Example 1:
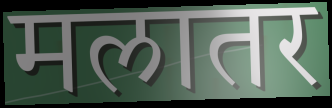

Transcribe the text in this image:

मलातर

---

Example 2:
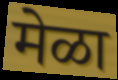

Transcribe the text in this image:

मेळा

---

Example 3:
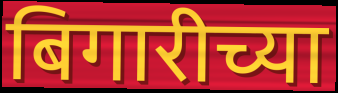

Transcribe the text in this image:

बिगारीच्या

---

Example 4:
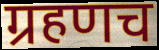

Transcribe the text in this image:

ग्रहणच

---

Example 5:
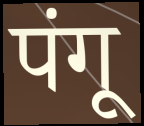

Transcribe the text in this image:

पंगू